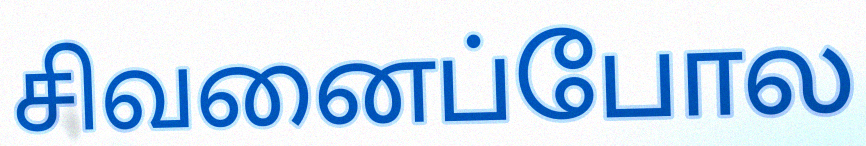
சிவனைப்போல